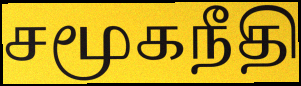
சமூகநீதி